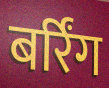
बर्रिंग